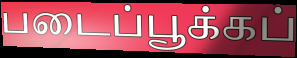
படைப்பூக்கப்